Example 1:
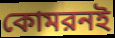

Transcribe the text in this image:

কোমরনই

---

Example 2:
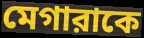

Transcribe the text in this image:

মেগারাকে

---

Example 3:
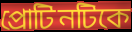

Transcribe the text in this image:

প্রোটিনটিকে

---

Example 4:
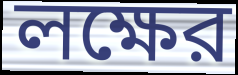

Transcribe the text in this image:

লক্ষের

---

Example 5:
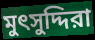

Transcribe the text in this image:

মুৎসুদ্দিরা